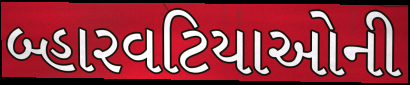
બ્હારવટિયાઓની